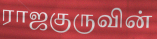
ராஜகுருவின்